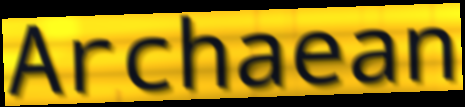
Archaean